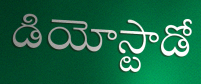
డియోస్టాడో